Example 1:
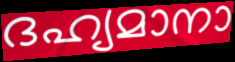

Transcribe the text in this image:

ദഹ്യമാനാ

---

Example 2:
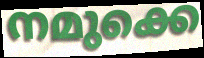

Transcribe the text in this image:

നമുക്കെ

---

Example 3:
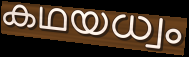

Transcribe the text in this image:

കഥയധ്വം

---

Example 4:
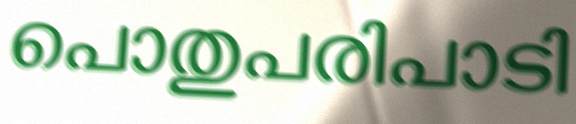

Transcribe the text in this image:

പൊതുപരിപാടി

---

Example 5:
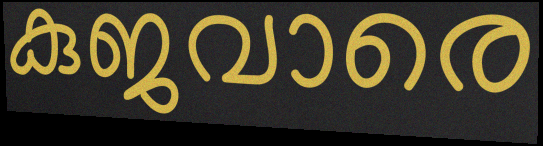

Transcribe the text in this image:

കുജവാരെ